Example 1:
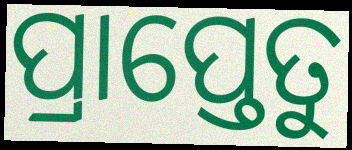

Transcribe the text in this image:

ପ୍ରାପ୍ତେତୁ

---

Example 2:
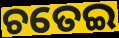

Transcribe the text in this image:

ଚତେଇ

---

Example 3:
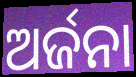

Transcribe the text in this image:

ଅର୍ଜନା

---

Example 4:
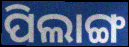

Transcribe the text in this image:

ପିଲାଙ୍ଗ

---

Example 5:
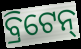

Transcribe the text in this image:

ବ୍ରିଟେନ୍